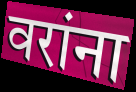
वरांना